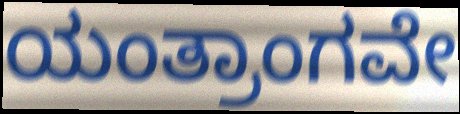
ಯಂತ್ರಾಂಗವೇ